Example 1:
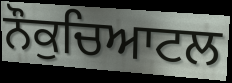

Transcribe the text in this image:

ਨੌਕੁਚਿਆਟਲ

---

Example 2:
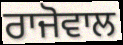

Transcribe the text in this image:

ਰਾਜੋਵਾਲ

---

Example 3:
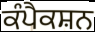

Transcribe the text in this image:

ਕੰਪੈਕਸ਼ਨ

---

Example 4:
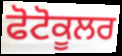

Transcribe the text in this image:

ਫੋਟੋਕੂਲਰ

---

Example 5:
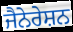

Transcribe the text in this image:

ਜੈਨੇਰੇਸ਼ਨ